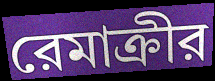
রেমাক্রীর